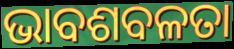
ଭାବଶବଳତା